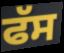
ਫੱਸ